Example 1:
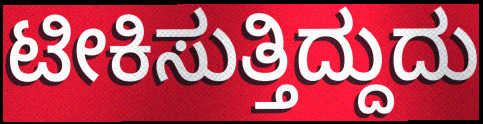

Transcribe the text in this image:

ಟೀಕಿಸುತ್ತಿದ್ದುದು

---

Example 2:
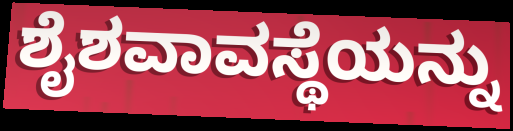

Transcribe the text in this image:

ಶೈಶವಾವಸ್ಥೆಯನ್ನು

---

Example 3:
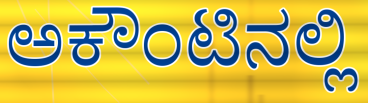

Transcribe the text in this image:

ಅಕೌಂಟಿನಲ್ಲಿ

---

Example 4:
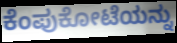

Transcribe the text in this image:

ಕೆಂಪುಕೋಟೆಯನ್ನು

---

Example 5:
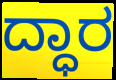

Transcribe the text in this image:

ದ್ಧಾರ